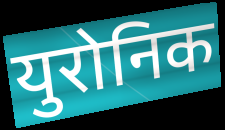
युरोनिक